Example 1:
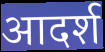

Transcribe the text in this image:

आदर्श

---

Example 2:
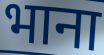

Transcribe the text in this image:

भाना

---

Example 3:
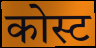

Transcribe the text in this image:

कोस्ट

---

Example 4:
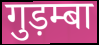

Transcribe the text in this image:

गुड़म्बा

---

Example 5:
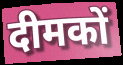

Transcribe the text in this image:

दीमकों